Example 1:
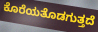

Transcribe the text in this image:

ಕೊರೆಯತೊಡಗುತ್ತದೆ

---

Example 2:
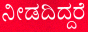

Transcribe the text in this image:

ನೀಡದಿದ್ದರೆ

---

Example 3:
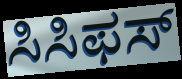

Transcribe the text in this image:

ಸಿಸಿಫಸ್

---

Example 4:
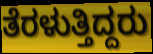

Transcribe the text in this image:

ತೆರಳುತ್ತಿದ್ದರು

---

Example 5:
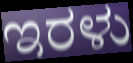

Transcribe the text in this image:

ಇರಳು